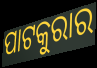
ପାଟକୁରାର